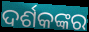
ଦର୍ଶକଙ୍କର